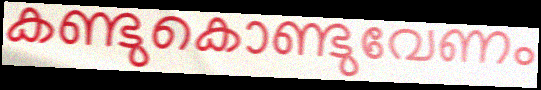
കണ്ടുകൊണ്ടുവേണം